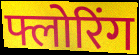
फ्लोरिंग